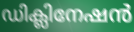
ഡിക്ലിനേഷൻ